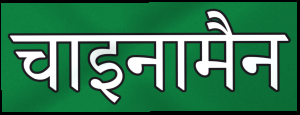
चाइनामैन